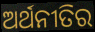
ଅର୍ଥନୀତିର